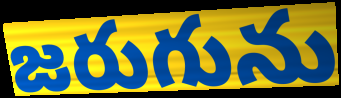
జరుగును